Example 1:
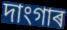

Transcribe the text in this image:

দাংগাৰ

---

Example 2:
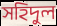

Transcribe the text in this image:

সহিদুল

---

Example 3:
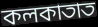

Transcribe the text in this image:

কলকাতাত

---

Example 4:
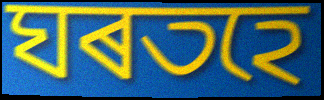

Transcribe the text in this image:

ঘৰতহে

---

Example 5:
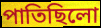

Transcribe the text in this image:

পাতিছিলো